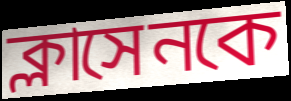
ক্লাসেনকে